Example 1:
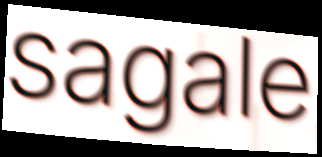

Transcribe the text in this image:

sagale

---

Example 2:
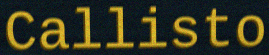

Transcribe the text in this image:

Callisto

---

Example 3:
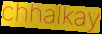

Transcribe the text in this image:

chhalkay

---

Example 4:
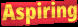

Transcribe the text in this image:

Aspiring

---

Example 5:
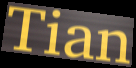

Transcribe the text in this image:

Tian